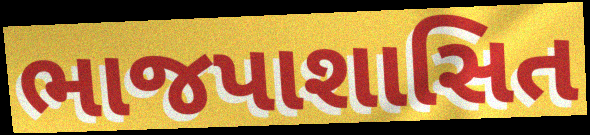
ભાજપાશાસિત